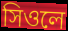
সিওলে